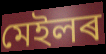
মেইলৰ